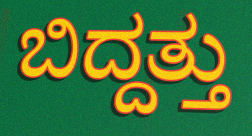
ಬಿದ್ದತ್ತು